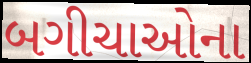
બગીચાઓના